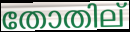
തോതില്